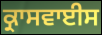
ਕ੍ਰਾਸਵਾਈਸ